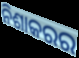
ନିଶାକରର